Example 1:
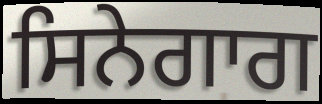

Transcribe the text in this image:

ਸਿਨੇਗਾਗ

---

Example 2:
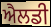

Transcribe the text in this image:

ਐਲਡੀ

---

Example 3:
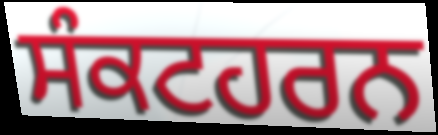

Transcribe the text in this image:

ਸੰਕਟਹਰਨ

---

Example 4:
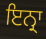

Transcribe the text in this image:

ਇਨ੍ਰਾ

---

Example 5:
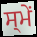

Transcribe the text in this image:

ਸ੍ਮੇਂ